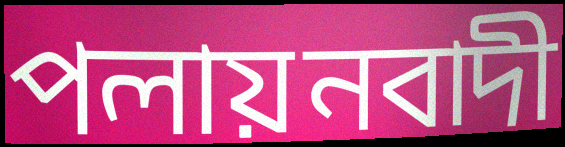
পলায়নবাদী